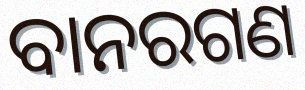
ବାନରଗଣ